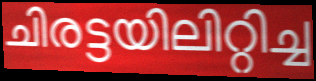
ചിരട്ടയിലിറ്റിച്ച